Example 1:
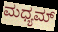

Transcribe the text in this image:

ಮಧ್ಯಮ್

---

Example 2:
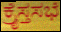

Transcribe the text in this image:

ಕ್ರೈಸ್ತಸಭೆ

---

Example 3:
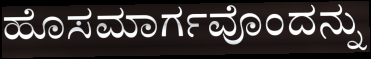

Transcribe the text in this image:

ಹೊಸಮಾರ್ಗವೊಂದನ್ನು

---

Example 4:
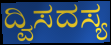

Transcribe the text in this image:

ದ್ವಿಸದಸ್ಯ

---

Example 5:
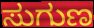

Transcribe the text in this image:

ಸುಗುಣ